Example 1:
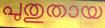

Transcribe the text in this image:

പുതുതായ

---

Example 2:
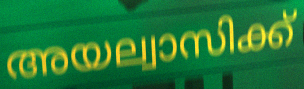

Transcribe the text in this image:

അയല്വാസിക്ക്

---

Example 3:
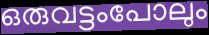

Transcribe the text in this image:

ഒരുവട്ടംപോലും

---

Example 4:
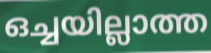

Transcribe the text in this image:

ഒച്ചയില്ലാത്ത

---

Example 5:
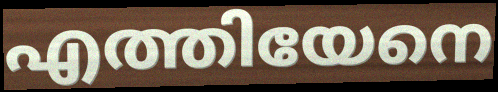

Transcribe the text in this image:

എത്തിയേനെ